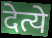
देत्ये